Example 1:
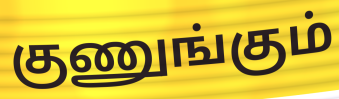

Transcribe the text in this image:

குணுங்கும்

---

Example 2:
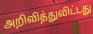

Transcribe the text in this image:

அறிவித்துவிட்டது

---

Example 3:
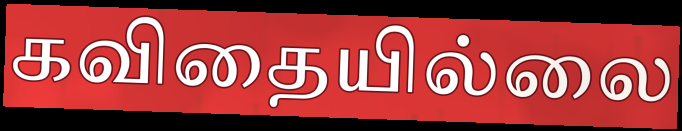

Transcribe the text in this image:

கவிதையில்லை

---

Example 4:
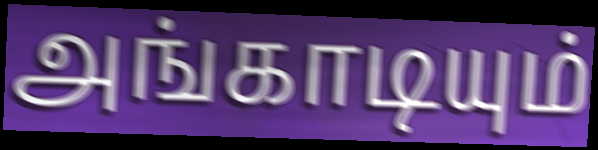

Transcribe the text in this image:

அங்காடியும்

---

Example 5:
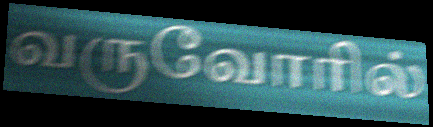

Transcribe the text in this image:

வருவோரில்